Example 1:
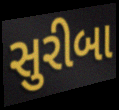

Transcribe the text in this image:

સુરીબા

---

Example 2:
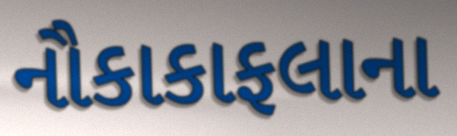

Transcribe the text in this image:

નૌકાકાફલાના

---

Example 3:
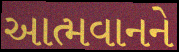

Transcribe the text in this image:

આત્મવાનને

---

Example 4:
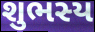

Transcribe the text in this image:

શુભસ્ય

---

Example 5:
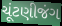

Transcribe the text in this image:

ચૂંટણીજંગ